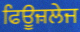
ਫਿਊਜ਼ਲੇਜ